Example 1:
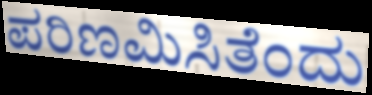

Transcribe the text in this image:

ಪರಿಣಮಿಸಿತೆಂದು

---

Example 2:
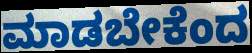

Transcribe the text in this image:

ಮಾಡಬೇಕೆಂದ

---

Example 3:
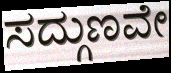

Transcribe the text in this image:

ಸದ್ಗುಣವೇ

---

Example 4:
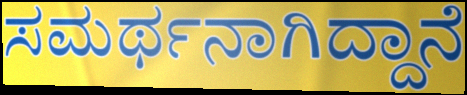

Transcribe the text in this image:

ಸಮರ್ಥನಾಗಿದ್ದಾನೆ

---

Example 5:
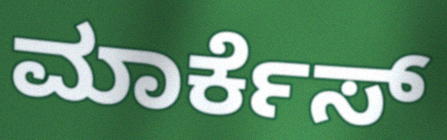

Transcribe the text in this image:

ಮಾರ್ಕೆಸ್